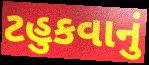
ટહુકવાનું